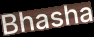
Bhasha